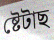
ষ্টেটাছ